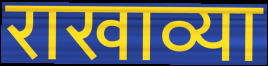
राखाव्या